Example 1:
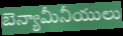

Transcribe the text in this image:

బెన్యామీనీయులు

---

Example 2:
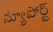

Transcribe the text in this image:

న్యూపోర్ట్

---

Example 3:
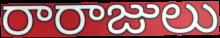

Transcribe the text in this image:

రారాజులు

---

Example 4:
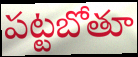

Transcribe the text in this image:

పట్టబోతూ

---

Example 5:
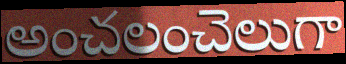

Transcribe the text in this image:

అంచలంచెలుగా